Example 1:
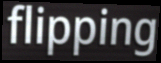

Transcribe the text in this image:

flipping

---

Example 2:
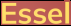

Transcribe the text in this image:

Essel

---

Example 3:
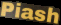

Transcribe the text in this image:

Piash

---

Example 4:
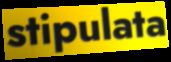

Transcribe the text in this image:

stipulata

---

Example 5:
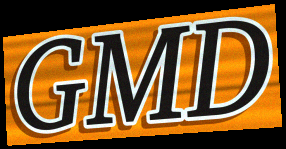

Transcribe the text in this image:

GMD